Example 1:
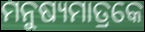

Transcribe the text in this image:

ମନୁଷ୍ୟମାତ୍ରକେ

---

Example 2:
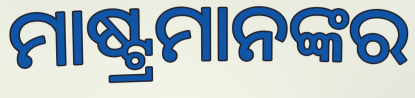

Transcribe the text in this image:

ମାଷ୍ଟ୍ରମାନଙ୍କର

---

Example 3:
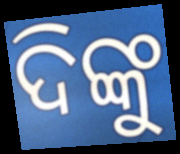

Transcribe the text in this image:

ଦିଙ୍କୁ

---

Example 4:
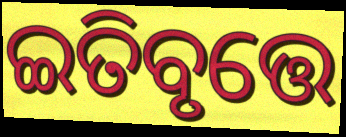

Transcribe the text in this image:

ଇତିବୃତ୍ତେ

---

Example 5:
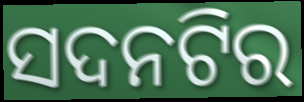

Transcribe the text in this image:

ସଦନଟିର